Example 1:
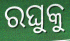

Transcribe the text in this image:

ରଘୁକୁ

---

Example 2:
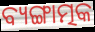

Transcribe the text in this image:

ବ୍ୟଙ୍ଗାତ୍ମକ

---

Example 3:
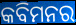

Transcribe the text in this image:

କବିମନର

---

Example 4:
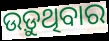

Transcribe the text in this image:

ଉଡ଼ୁଥିବାର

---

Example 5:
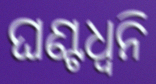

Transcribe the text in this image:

ଘଣ୍ଟଧ୍ୱନି